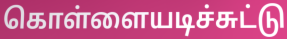
கொள்ளையடிச்சுட்டு